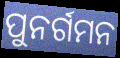
ପୁନର୍ଗମନ